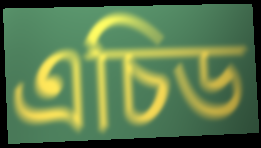
এচিড